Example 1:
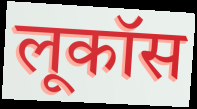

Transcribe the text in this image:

लूकॉस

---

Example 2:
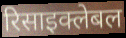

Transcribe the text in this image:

रिसाइक्लेबल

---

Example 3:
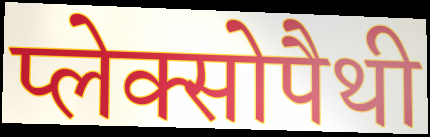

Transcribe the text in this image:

प्लेक्सोपैथी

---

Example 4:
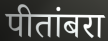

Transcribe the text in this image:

पीतांबरा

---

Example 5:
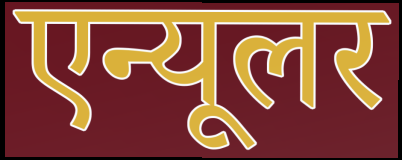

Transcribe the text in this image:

एन्यूलर